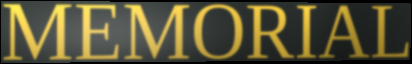
MEMORIAL